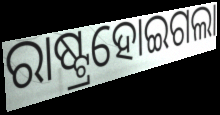
ରାଷ୍ଟ୍ରହୋଇଗଲା